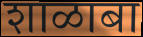
शाळाबा